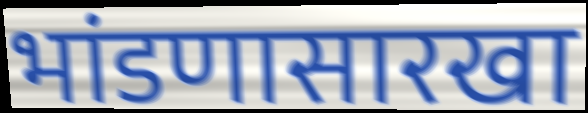
भांडणासारखा